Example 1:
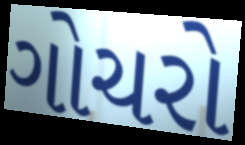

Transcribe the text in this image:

ગોચરો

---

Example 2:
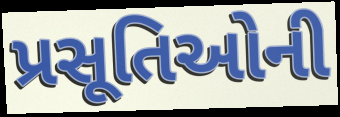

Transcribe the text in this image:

પ્રસૂતિઓની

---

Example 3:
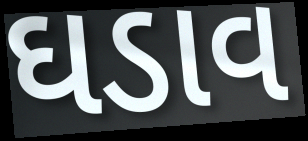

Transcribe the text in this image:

ઘડાવ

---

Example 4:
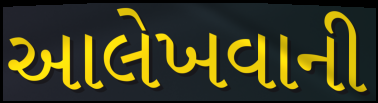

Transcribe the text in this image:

આલેખવાની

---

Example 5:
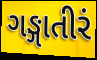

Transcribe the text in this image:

ગઙ્ગાતીરં